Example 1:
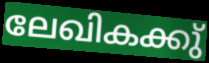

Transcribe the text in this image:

ലേഖികക്കു്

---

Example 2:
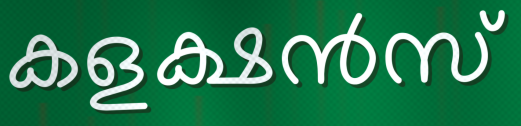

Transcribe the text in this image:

കളക്ഷൻസ്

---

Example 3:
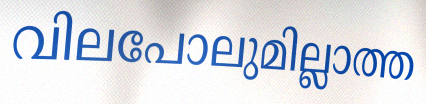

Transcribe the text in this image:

വിലപോലുമില്ലാത്ത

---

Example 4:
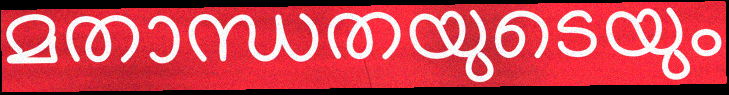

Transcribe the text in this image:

മതാന്ധതയുടെയും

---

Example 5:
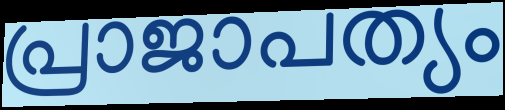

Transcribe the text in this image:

പ്രാജാപത്യം